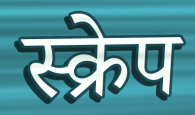
स्क्रेप